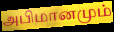
அபிமானமும்